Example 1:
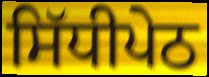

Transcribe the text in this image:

ਸਿੱਧੀਪੇਠ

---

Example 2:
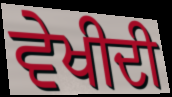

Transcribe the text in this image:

ਵੇਖੀਦੀ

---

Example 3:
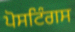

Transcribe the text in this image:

ਪੋਸਟਿੰਗਸ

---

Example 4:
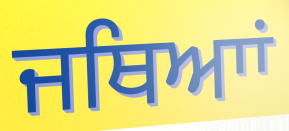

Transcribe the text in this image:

ਜਥਿਆਾਂ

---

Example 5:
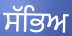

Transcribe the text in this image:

ਸੱਭਿਅ